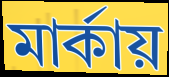
মার্কায়